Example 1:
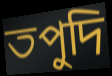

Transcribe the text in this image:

তপুদি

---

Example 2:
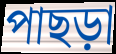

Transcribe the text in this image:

পাছড়া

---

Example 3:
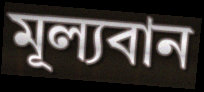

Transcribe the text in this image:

মূল্যবান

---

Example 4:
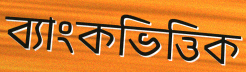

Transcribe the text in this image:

ব্যাংকভিত্তিক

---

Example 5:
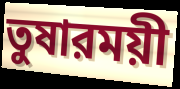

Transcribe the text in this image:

তুষারময়ী